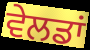
ਵੇਲਡਾਂ